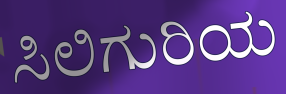
ಸಿಲಿಗುರಿಯ